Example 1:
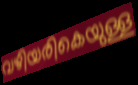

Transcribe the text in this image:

വഴിയരികെയുള്ള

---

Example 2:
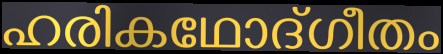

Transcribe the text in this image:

ഹരികഥോദ്ഗീതം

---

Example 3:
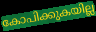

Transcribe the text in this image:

കോപിക്കുകയില്ല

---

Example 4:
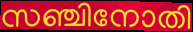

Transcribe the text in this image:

സഞ്ചിനോതി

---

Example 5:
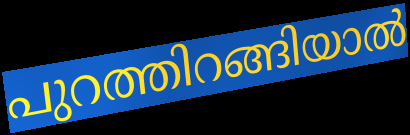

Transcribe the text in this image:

പുറത്തിറങ്ങിയാൽ